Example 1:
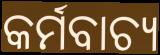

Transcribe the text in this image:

କର୍ମବାଚ୍ୟ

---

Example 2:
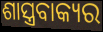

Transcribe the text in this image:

ଶାସ୍ତ୍ରବାକ୍ୟର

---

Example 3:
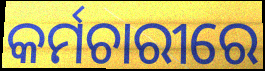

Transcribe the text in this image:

କର୍ମଚାରୀରେ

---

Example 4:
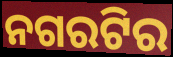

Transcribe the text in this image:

ନଗରଟିର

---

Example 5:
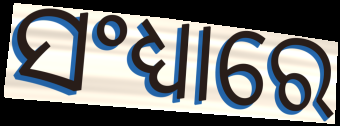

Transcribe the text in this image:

ସଂଧ୍ୟାରେ